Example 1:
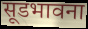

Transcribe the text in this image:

सूडभावना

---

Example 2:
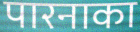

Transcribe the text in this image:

पारनाका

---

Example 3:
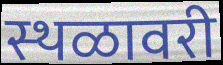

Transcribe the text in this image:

स्थळावरी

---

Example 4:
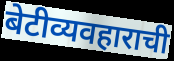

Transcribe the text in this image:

बेटीव्यवहाराची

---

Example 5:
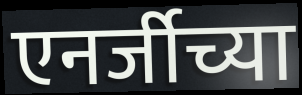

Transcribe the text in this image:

एनर्जीच्या